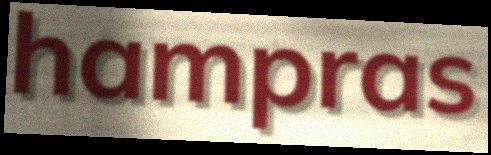
hampras